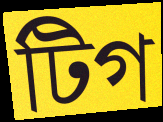
টিগ